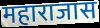
महाराजास